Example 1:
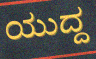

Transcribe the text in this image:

ಯುದ್ದ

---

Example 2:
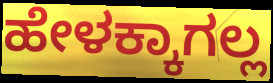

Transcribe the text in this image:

ಹೇಳಕ್ಕಾಗಲ್ಲ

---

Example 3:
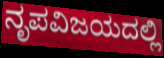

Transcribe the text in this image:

ನೃಪವಿಜಯದಲ್ಲಿ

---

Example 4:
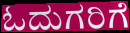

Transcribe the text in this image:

ಓದುಗರಿಗೆ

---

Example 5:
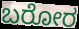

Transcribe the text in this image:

ಬರೋರ